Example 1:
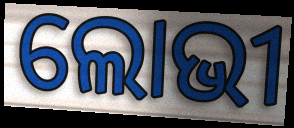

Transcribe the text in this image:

ଲୋଭୀ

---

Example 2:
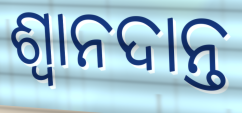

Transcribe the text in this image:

ଶ୍ଵାନଦାନ୍ତ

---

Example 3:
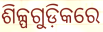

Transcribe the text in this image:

ଶିଳ୍ପଗୁଡ଼ିକରେ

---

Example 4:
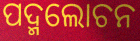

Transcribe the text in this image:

ପଦ୍ମଲୋଚନ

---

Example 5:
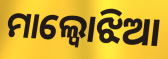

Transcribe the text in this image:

ମାଲ୍ବୋଝିଆ